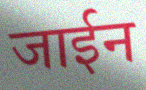
जाईन